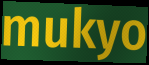
mukyo